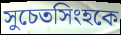
সুচেতসিংহকে